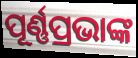
ପୂର୍ଣ୍ଣପ୍ରଭାଙ୍କ